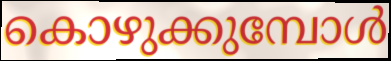
കൊഴുക്കുമ്പോൾ